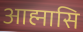
आह्मासि